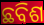
ଛବିଶ